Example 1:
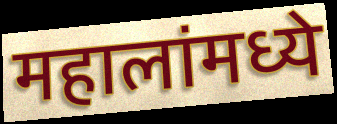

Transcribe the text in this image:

महालांमध्ये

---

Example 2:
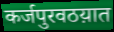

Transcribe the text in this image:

कर्जपुरवठय़ात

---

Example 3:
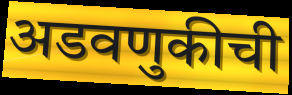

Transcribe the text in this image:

अडवणुकीची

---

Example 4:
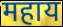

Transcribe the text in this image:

महाय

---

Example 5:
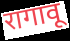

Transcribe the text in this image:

रागावू